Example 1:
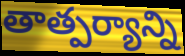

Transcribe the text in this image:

తాత్పర్యాన్ని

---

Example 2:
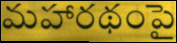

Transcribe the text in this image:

మహారథంపై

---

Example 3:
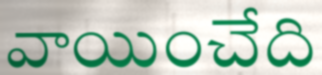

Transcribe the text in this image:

వాయించేది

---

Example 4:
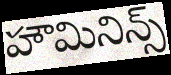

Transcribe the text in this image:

హౌమినిన్స్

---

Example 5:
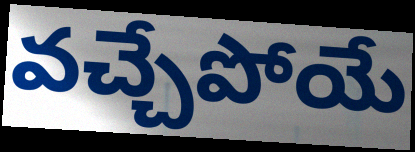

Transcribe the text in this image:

వచ్చేపోయే